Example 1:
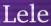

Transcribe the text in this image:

Lele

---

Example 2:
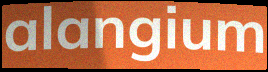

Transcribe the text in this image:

alangium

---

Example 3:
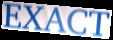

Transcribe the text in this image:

EXACT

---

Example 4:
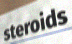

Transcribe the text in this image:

steroids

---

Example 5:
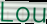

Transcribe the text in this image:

Lou